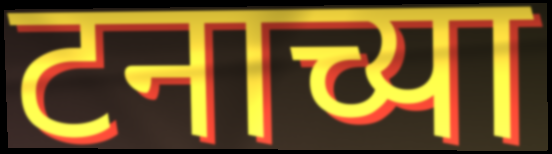
टनाच्या